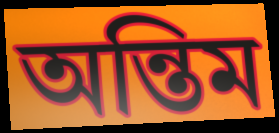
অন্তিম